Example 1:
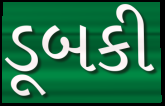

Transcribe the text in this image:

ડૂબકી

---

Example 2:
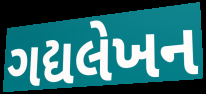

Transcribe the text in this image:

ગદ્યલેખન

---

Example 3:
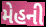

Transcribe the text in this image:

મેહની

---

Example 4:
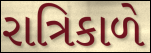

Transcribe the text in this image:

રાત્રિકાળે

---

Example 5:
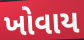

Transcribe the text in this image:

ખોવાય